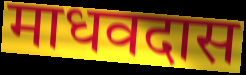
माधवदास